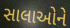
સાલાઓને